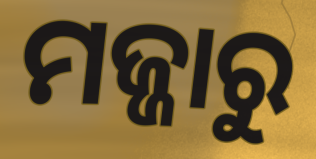
ମଜ୍ଜାରୁ